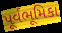
પૂર્વભૂમિકા